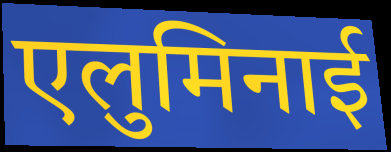
एलुमिनाई